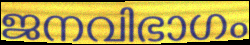
ജനവിഭാഗം